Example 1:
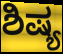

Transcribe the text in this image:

ಶಿಷ್ಯ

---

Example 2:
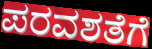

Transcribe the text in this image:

ಪರವಶತೆಗೆ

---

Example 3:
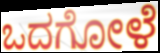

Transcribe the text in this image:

ಒದಗೋಳೆ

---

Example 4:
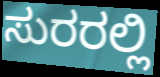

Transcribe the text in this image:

ಸುರರಲ್ಲಿ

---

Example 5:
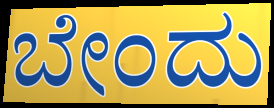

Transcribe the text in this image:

ಬೇಂದು